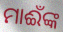
ମାଈଁଙ୍କ